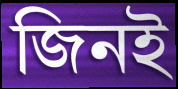
জিনই